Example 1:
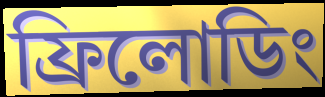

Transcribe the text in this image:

ফ্রিলোডিং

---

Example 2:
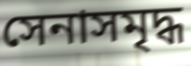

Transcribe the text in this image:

সেনাসমৃদ্ধ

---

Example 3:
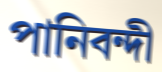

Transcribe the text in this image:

পানিবন্দী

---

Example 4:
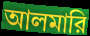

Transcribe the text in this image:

আলমারি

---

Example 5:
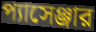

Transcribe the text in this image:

প্যাসেঞ্জার